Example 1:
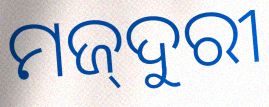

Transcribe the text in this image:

ମଜ୍‌ଦୁରୀ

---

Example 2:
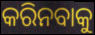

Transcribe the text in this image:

କରିନବାକୁ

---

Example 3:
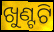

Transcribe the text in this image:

ଖୁଣ୍ଟଟି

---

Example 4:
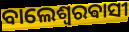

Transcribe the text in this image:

ବାଲେଶ୍ଵରଵାସୀ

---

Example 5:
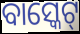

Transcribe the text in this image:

ବାସ୍କେଟ୍